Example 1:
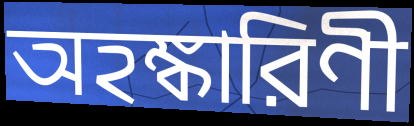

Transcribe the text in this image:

অহঙ্কারিণী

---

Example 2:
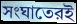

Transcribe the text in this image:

সংঘাতেরই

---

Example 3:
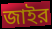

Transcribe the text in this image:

জাইর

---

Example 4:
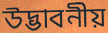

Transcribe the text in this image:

উদ্ভাবনীয়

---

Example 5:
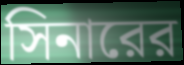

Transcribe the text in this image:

সিনারের